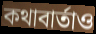
কথাবার্তাও